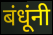
बंधूंनी